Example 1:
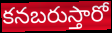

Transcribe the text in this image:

కనబరుస్తారో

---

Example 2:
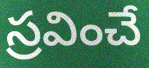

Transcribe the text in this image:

స్రవించే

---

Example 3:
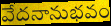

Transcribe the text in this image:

వేదనానుభవం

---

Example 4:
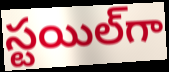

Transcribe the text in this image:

స్టయిల్‌గా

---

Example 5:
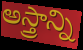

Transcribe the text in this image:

అస్త్రాన్ని